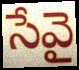
సేవై